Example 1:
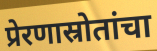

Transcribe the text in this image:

प्रेरणास्रोतांचा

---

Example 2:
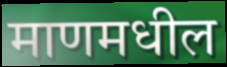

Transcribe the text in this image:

माणमधील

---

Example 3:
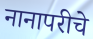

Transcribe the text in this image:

नानापरीचे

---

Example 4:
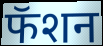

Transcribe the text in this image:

फॅशन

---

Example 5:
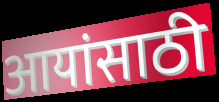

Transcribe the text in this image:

आयांसाठी